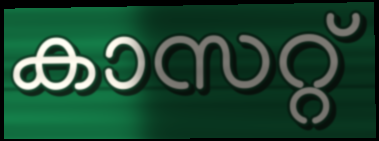
കാസറ്റ്